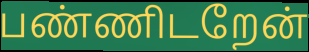
பண்ணிடறேன்